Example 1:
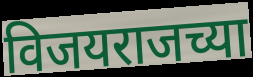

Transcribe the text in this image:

विजयराजच्या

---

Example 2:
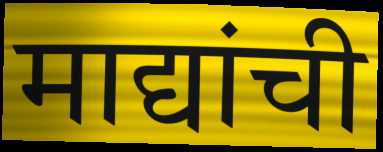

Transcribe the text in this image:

माद्यांची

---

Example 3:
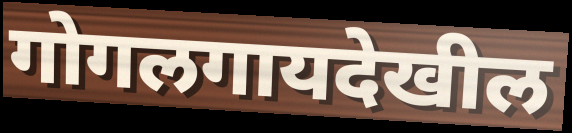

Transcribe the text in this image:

गोगलगायदेखील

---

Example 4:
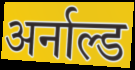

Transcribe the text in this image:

अर्नाल्ड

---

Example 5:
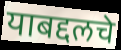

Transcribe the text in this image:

याबद्दलचे